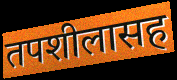
तपशीलासह